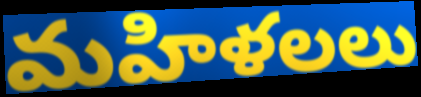
మహిళలలు